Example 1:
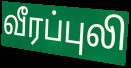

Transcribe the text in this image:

வீரப்புலி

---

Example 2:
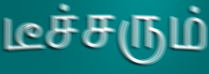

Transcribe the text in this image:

டீச்சரும்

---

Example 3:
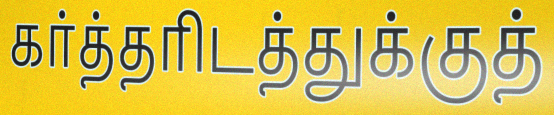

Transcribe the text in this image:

கர்த்தரிடத்துக்குத்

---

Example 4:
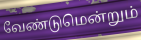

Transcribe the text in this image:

வேண்டுமென்றும்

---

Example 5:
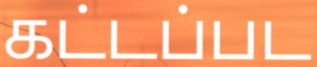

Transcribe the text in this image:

கட்டப்பட